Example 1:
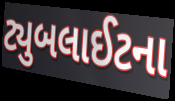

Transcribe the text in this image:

ટ્યુબલાઈટના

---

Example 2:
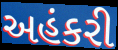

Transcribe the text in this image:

અહંકરી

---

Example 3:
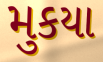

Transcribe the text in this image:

મુકયા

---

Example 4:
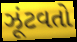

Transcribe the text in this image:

ઝૂંટવતો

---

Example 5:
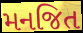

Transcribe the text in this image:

મનજિત